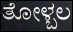
ತೋಳ್ಬಲ